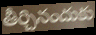
తీర్చినందుకు